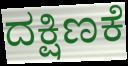
ದಕ್ಷಿಣಕೆ